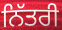
ਨਿੱਤਰੀ